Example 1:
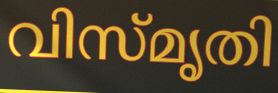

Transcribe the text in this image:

വിസ്മൃതി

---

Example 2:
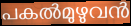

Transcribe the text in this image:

പകൽമുഴുവൻ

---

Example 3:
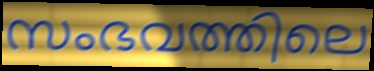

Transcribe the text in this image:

സംഭവത്തിലെ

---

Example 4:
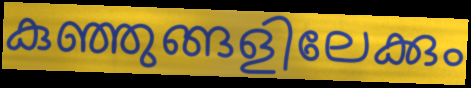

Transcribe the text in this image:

കുഞ്ഞുങ്ങളിലേക്കും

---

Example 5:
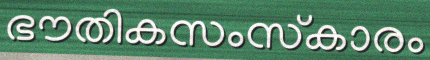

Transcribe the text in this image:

ഭൗതികസംസ്‌കാരം